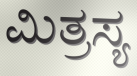
ಮಿತ್ರಸ್ಯ